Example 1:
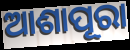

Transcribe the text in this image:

ଆଶାପୂରା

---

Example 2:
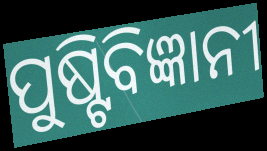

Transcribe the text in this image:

ପୁଷ୍ଟିବିଜ୍ଞାନୀ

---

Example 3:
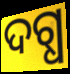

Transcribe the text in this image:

ଦଗ୍ଧ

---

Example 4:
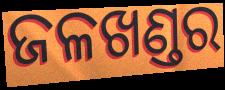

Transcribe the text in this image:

ଜଳଖଣ୍ଡର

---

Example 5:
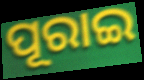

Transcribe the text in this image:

ପୂରାଇ